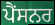
ਪੈਂਸਨਰ